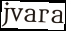
jvara